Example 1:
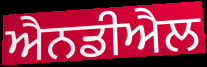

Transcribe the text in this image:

ਐਨਡੀਐਲ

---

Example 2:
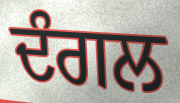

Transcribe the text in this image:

ਦੰਗਲ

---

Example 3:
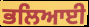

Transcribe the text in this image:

ਭਲਿਆਈ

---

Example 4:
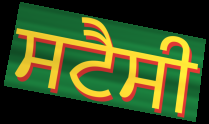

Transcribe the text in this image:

ਸਟੈਸੀ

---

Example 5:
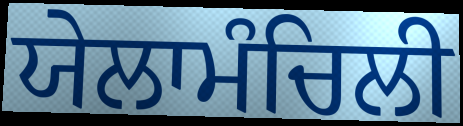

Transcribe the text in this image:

ਯੇਲਾਮੰਚਿਲੀ